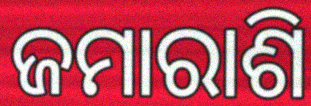
ଜମାରାଶି